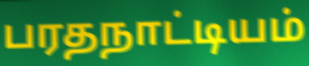
பரதநாட்டியம்